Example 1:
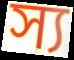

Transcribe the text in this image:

স্য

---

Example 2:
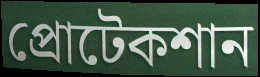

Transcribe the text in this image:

প্রোটেকশান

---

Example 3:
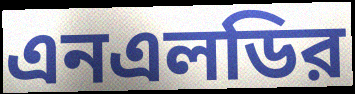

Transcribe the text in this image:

এনএলডির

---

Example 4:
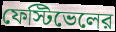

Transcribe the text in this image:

ফেস্টিভেলের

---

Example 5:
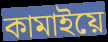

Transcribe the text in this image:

কামাইয়ে